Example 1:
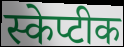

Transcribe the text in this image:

स्केप्टीक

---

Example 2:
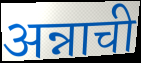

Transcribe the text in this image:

अन्नाची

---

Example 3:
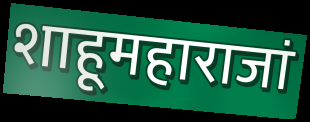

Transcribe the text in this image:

शाहूमहाराजां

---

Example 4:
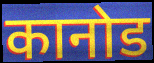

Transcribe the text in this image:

कानोड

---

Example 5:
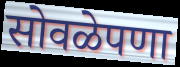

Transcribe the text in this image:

सोवळेपणा